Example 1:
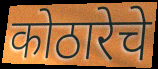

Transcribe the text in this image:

कोठारेचे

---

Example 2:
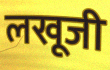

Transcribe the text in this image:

लखूजी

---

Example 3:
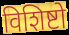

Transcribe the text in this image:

विशिष्टो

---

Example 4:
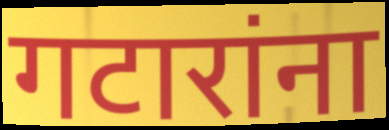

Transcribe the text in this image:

गटारांना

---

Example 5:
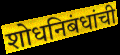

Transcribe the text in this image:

शोधनिबंधांची